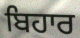
ਬਿਹਾਰ